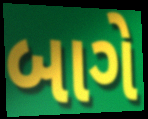
બાગે